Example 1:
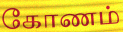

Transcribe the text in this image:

கோணம்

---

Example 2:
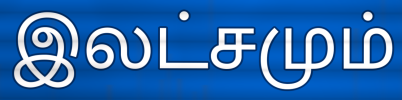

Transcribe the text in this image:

இலட்சமும்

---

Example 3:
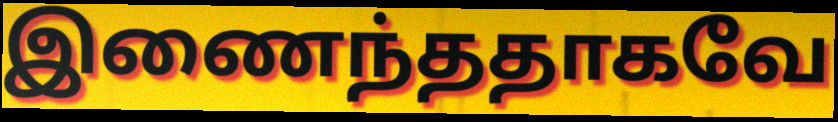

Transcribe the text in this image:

இணைந்ததாகவே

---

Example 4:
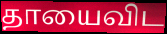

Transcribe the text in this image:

தாயைவிட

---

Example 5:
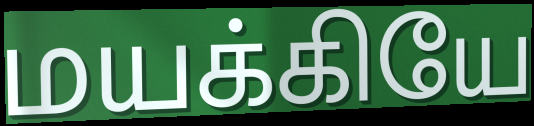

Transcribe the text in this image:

மயக்கியே